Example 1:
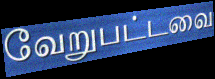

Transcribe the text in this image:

வேறுபட்டவை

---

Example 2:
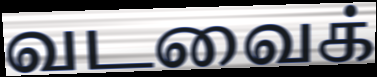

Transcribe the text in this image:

வடவைக்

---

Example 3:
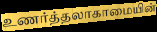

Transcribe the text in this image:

உணர்த்தலாகாமையின்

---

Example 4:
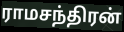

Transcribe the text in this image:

ராமசந்திரன்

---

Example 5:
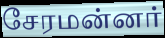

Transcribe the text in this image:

சேரமன்னர்